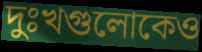
দুঃখগুলোকেও